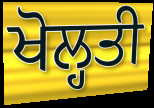
ਖੋਲ੍ਹਤੀ